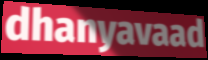
dhanyavaad